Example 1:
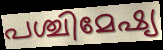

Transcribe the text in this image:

പശ്ചിമേഷ്യ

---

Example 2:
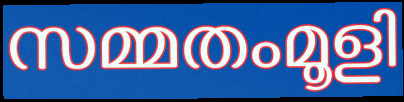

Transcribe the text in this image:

സമ്മതംമൂളി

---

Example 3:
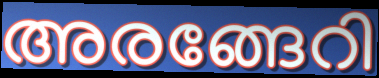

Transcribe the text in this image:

അരങ്ങേറി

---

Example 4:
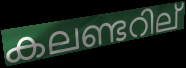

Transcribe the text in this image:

കലണ്ടറില്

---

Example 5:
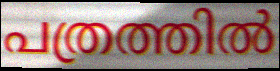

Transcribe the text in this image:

പത്രത്തിൽ